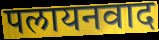
पलायनवाद